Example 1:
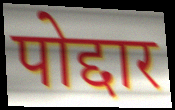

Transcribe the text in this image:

पोद्दार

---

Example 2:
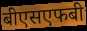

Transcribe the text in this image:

बीएसएफबी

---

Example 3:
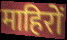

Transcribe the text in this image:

माहिरों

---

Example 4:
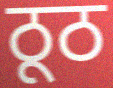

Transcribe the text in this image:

ठूठ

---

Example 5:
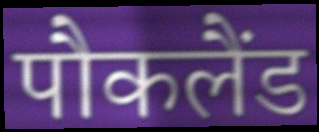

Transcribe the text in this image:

पौकलैंड